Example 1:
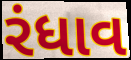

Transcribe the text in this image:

રંધાવ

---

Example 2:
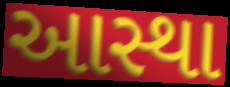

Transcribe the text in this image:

આસ્થા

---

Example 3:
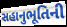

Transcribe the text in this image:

સહાનુભૂતિની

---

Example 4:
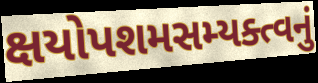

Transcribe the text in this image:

ક્ષયોપશમસમ્યક્ત્વનું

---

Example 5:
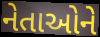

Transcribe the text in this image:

નેતાઓને